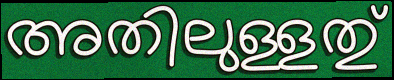
അതിലുള്ളതു്